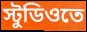
স্টুডিওতে